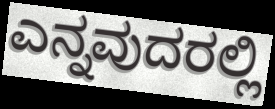
ಎನ್ನವುದರಲ್ಲಿ